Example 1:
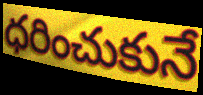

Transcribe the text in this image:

ధరించుకునే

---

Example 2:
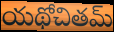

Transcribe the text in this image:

యథోచితమ్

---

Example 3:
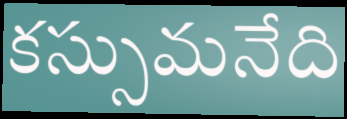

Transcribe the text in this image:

కస్సుమనేది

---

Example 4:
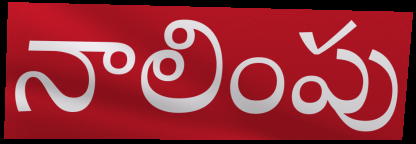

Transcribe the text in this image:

నాలింపు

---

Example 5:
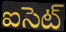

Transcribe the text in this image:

ఐసెట్